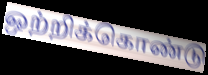
ஒற்றிக்கொண்டு